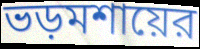
ভড়মশায়ের